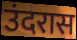
उंदरास